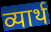
व्यार्थ